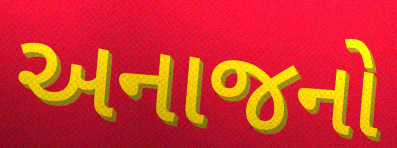
અનાજનો